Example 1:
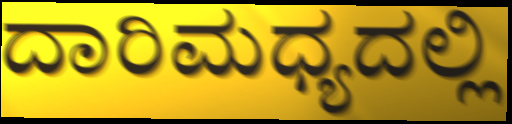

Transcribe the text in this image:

ದಾರಿಮಧ್ಯದಲ್ಲಿ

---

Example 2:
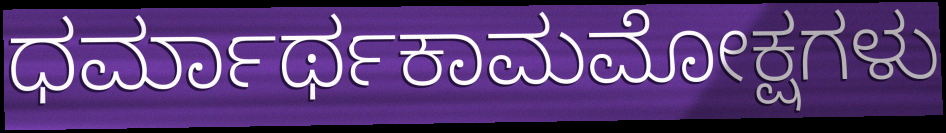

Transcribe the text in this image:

ಧರ್ಮಾರ್ಥಕಾಮಮೋಕ್ಷಗಳು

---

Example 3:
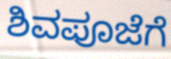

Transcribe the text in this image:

ಶಿವಪೂಜೆಗೆ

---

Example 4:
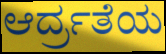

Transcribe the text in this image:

ಆರ್ದ್ರತೆಯ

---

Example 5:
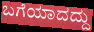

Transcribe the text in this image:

ಬಗೆಯಾದದ್ದು